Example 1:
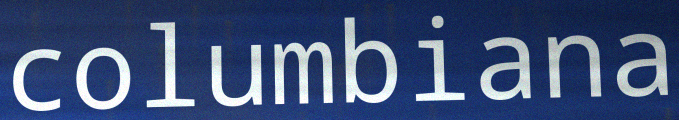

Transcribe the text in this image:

columbiana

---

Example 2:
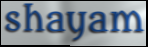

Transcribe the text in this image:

shayam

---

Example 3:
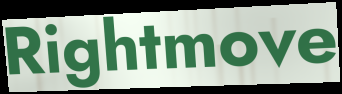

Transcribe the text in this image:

Rightmove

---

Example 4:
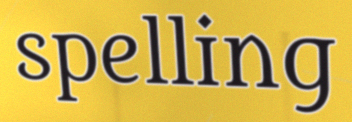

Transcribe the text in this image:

spelling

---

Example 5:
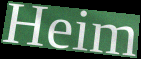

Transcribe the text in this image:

Heim